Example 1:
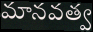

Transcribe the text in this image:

మానవత్వ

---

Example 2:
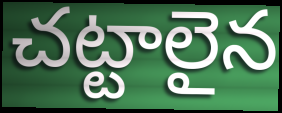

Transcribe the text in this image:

చట్టాలైన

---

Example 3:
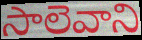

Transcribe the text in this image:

సాలెవాని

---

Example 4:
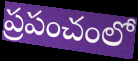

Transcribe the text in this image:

ప్రపంచంలో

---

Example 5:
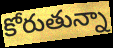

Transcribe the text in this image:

కోరుతున్నా